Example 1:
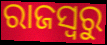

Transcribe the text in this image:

ରାଜସ୍ୱରୁ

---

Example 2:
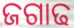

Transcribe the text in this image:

ଜଗାଢ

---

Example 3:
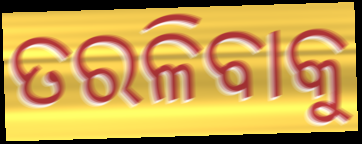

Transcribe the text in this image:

ତରଳିବାକୁ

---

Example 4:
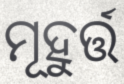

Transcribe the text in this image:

ମୂହୁର୍ତ୍ତ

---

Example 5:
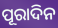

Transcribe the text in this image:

ପୂରାଦିନ